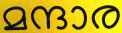
മന്ദാര